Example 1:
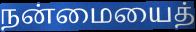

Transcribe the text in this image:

நன்மையைத்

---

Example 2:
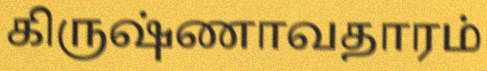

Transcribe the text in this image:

கிருஷ்ணாவதாரம்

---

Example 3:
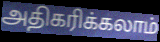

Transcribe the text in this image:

அதிகரிக்கலாம்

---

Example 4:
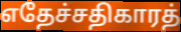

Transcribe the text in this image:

எதேச்சதிகாரத்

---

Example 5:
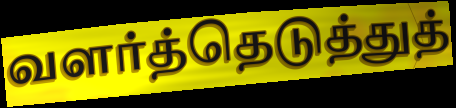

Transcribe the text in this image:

வளர்த்தெடுத்துத்